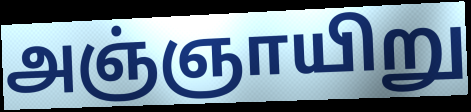
அஞ்ஞாயிறு